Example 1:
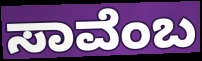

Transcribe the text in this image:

ಸಾವೆಂಬ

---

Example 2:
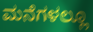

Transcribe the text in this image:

ಮನೆಗಳಲ್ಲೂ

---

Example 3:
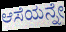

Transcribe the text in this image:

ಆಸೆಯನ್ನೇ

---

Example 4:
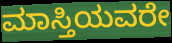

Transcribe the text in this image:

ಮಾಸ್ತಿಯವರೇ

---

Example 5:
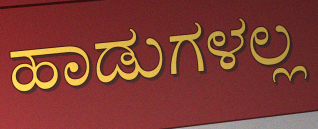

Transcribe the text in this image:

ಹಾಡುಗಳಲ್ಲ